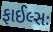
ફાઈલ્સઃ